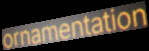
ornamentation